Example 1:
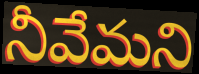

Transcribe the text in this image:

నీవేమని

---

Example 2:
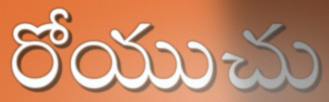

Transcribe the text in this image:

రోయుచు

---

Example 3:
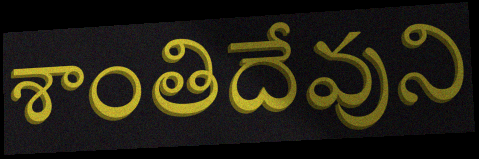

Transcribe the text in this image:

శాంతిదేవుని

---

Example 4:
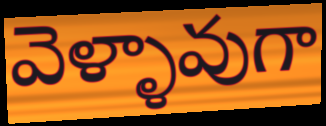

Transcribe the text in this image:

వెళ్ళావుగా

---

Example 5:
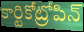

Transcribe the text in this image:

కార్టికోట్రోపిన్